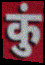
कुं